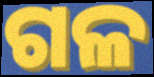
ଗଳ